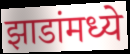
झाडांमध्ये